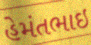
હેમંતભાઇ